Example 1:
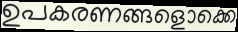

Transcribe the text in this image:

ഉപകരണങ്ങളൊക്കെ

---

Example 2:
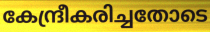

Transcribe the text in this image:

കേന്ദ്രീകരിച്ചതോടെ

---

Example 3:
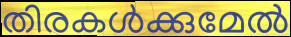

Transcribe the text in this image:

തിരകൾക്കുമേൽ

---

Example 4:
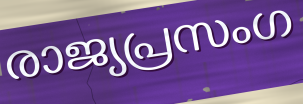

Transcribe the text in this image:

രാജ്യപ്രസംഗ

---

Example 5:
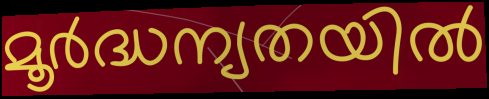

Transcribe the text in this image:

മൂർദ്ധന്യതയിൽ